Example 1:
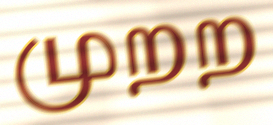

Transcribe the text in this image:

முறற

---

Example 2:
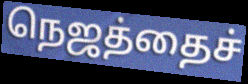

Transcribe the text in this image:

நெஜத்தைச்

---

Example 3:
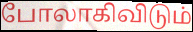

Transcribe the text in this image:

போலாகிவிடும்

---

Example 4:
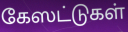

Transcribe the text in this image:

கேஸட்டுகள்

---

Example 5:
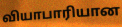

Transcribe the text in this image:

வியாபாரியான